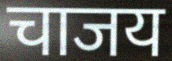
चाजय